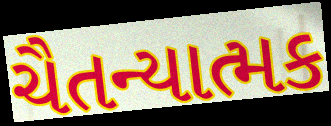
ચૈતન્યાત્મક